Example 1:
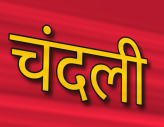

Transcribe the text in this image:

चंदली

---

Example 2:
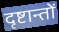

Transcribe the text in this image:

दृष्टान्तों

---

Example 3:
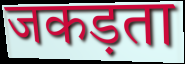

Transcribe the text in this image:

जकड़ता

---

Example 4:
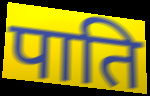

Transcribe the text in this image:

पाति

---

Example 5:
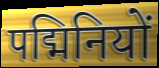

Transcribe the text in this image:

पद्मिनियों